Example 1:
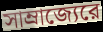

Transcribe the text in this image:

সাম্রাজ্যেরে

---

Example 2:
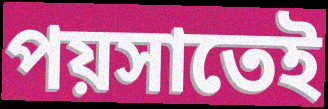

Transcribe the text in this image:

পয়সাতেই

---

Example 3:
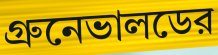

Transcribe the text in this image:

গ্রুনেভালডের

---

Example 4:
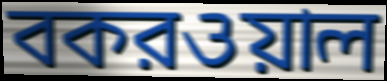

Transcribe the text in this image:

বকরওয়াল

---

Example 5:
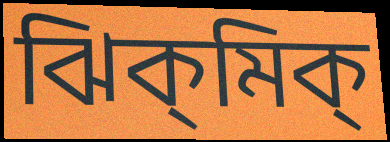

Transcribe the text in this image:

ঝিক্‌মিক্